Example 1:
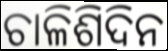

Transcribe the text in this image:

ଚାଳିଶିଦିନ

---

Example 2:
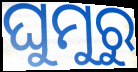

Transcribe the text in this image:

ଘୁମୁରୁ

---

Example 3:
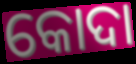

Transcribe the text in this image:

କୋଦା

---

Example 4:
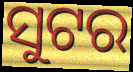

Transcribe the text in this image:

ସୁଟର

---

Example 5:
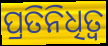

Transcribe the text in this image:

ପ୍ରତିନିଧିତ୍ୱ